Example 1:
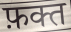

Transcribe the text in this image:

फ़क्त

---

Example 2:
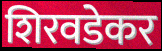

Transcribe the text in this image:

शिरवडेकर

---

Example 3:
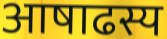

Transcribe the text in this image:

आषाढस्य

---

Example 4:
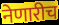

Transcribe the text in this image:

नेणारीच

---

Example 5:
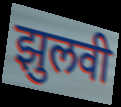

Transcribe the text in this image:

झुलवी